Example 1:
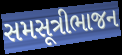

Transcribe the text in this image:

સમસૂત્રીભાજન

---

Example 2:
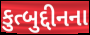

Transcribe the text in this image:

કુત્બુદ્દીનના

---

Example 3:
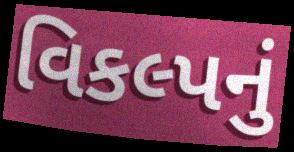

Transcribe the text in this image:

વિકલ્પનું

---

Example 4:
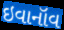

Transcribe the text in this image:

ઇવાનૉવ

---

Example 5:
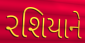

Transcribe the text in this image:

રશિયાને